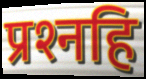
प्रश्नहि